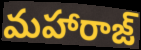
మహారాజ్